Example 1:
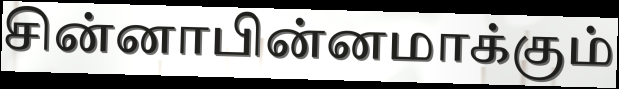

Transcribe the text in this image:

சின்னாபின்னமாக்கும்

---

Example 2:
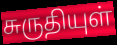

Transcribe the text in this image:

சுருதியுள்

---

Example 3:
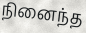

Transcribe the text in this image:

நினைந்த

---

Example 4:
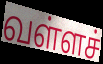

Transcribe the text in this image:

வள்ளச்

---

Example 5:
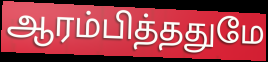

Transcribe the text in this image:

ஆரம்பித்ததுமே